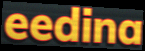
eedina